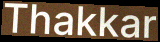
Thakkar